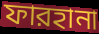
ফারহানা